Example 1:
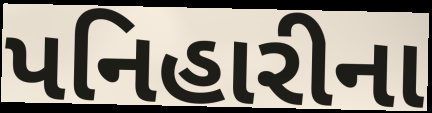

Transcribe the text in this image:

પનિહારીના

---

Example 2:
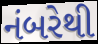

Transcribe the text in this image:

નંબરેથી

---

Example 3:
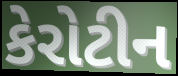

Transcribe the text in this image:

કેરોટીન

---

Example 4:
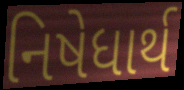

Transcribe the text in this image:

નિષેધાર્થ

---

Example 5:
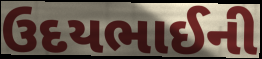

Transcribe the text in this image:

ઉદયભાઈની